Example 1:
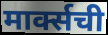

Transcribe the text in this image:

मार्क्सची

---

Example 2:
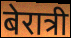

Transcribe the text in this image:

बेरात्री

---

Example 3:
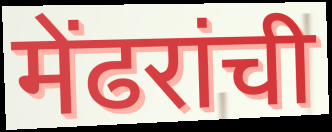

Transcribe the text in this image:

मेंढरांची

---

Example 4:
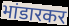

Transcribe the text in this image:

भांडारकर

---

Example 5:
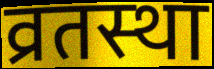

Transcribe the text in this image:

व्रतस्था